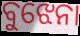
ବୁଝେନା